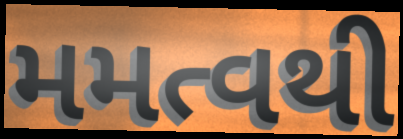
મમત્વથી